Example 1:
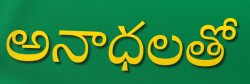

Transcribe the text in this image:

అనాధలతో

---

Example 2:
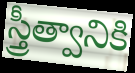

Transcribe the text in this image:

స్త్రీత్వానికి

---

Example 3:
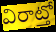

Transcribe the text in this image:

విరాట్తో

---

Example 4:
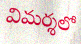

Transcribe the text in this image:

విమర్శలో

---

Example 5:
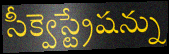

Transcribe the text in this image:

సీక్వెస్ట్రేషన్ను